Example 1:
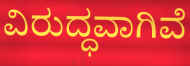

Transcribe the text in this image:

ವಿರುದ್ಧವಾಗಿವೆ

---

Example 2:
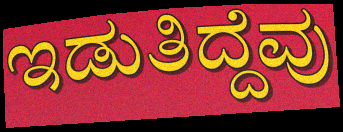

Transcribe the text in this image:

ಇಡುತಿದ್ದೆವು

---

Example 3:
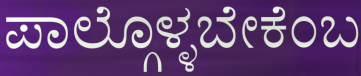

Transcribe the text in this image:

ಪಾಲ್ಗೊಳ್ಳಬೇಕೆಂಬ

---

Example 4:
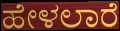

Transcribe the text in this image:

ಹೇಳಲಾರೆ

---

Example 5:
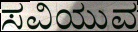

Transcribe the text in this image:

ಸವಿಯುವ